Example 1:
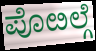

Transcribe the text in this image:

ಪೊೞಲ್ಗೆ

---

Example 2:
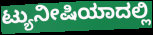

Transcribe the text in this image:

ಟ್ಯುನೀಷಿಯಾದಲ್ಲಿ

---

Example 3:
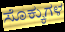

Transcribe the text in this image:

ಸೊಕ್ಕುಗಳ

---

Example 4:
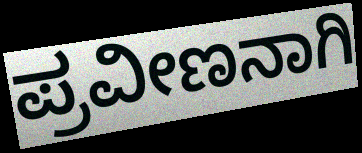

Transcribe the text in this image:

ಪ್ರವೀಣನಾಗಿ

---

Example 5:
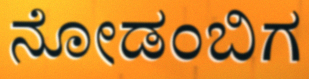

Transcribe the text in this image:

ನೋಡಂಬಿಗ